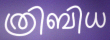
ത്രിബിധ